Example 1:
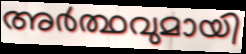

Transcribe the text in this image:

അർത്ഥവുമായി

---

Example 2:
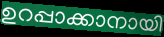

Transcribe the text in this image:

ഉറപ്പാക്കാനായി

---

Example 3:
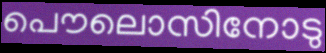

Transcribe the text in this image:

പൌലൊസിനോടു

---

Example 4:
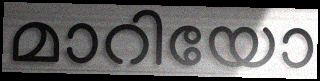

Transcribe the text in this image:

മാറിയോ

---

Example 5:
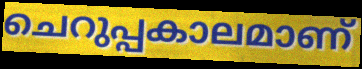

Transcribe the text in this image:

ചെറുപ്പകാലമാണ്